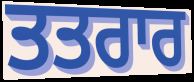
ਤਤਰਾਰ